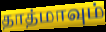
தாத்மாவும்